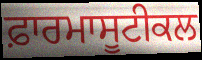
ਫ਼ਾਰਮਾਸੂਟੀਕਲ